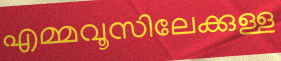
എമ്മവൂസിലേക്കുള്ള